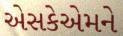
એસકેએમને